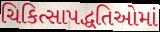
ચિકિત્સાપદ્ધતિઓમાં